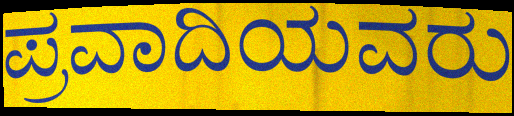
ಪ್ರವಾದಿಯವರು